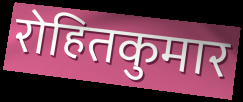
रोहितकुमार